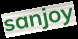
sanjoy